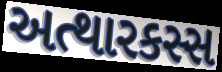
અત્થારકસ્સ